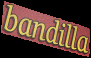
bandilla